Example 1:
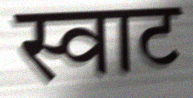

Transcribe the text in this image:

स्वाट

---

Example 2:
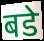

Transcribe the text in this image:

बडे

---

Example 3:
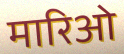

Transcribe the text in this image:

मारिओ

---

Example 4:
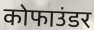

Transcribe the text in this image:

कोफाउंडर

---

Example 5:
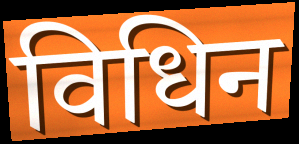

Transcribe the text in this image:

विधिन